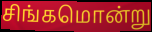
சிங்கமொன்று